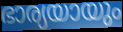
ഭാര്യയായും